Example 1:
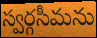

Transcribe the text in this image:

స్వర్గసీమను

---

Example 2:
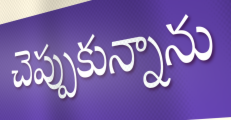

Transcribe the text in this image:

చెప్పుకున్నాను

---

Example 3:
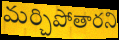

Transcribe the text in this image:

మర్చిపోతారని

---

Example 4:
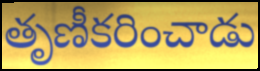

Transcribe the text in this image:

తృణీకరించాడు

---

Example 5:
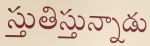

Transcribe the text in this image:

స్తుతిస్తున్నాడు